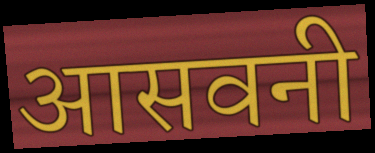
आसवनी